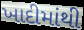
ખાદીમાંથી